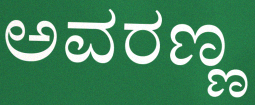
ಅವರಣ್ಣ